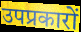
उपप्रकारों